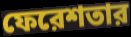
ফেরেশতার